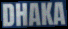
DHAKA